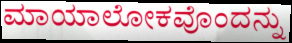
ಮಾಯಾಲೋಕವೊಂದನ್ನು